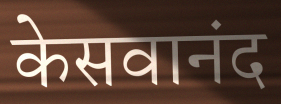
केसवानंद